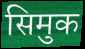
सिमुक